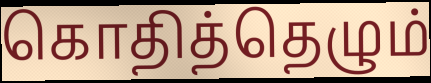
கொதித்தெழும்